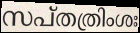
സപ്തത്രിംശഃ